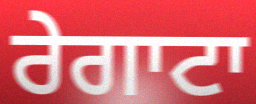
ਰੇਗਾਟਾ